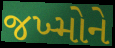
જખ્મોને